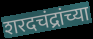
शरदचंद्रांच्या